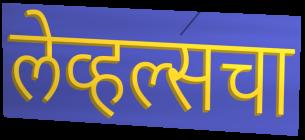
लेव्हल्सचा